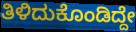
ತಿಳಿದುಕೊಂಡಿದ್ದೇ